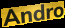
Andro